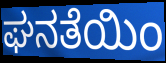
ಘನತೆಯಿಂ